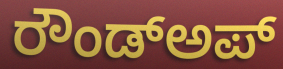
ರೌಂಡ್ಅಪ್